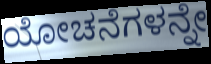
ಯೋಚನೆಗಳನ್ನೇ